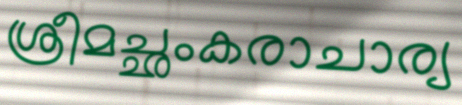
ശ്രീമച്ഛംകരാചാര്യ